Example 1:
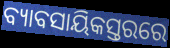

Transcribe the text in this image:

ବ୍ୟାବସାୟିକସ୍ତରରେ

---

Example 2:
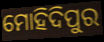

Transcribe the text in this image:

ମୋହିଦିପୁର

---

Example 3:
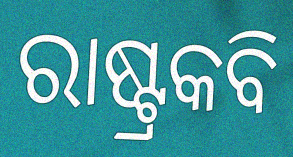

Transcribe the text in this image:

ରାଷ୍ଟ୍ରକବି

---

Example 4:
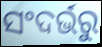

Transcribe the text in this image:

ସଂଦର୍ଭରୁ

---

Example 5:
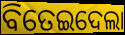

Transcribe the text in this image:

ବିତେଇଦେଲା